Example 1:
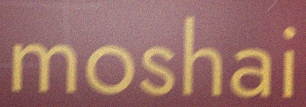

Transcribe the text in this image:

moshai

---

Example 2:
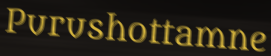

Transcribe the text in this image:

Purushottamne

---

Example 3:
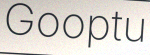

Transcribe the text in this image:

Gooptu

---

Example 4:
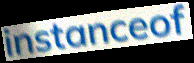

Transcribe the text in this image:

instanceof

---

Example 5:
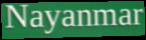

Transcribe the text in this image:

Nayanmar